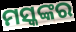
ମସ୍କଙ୍କର